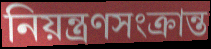
নিয়ন্ত্রণসংক্রান্ত